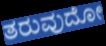
ತರುವುದೋ